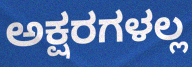
ಅಕ್ಷರಗಳಲ್ಲ